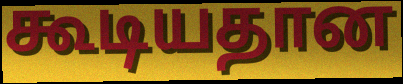
கூடியதான